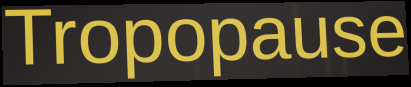
Tropopause